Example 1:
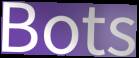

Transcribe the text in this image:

Bots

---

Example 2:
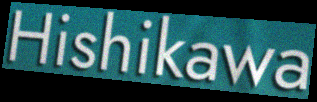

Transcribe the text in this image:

Hishikawa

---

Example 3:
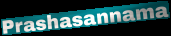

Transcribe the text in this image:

Prashasannama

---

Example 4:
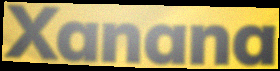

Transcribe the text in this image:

Xanana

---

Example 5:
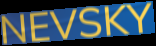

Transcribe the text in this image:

NEVSKY